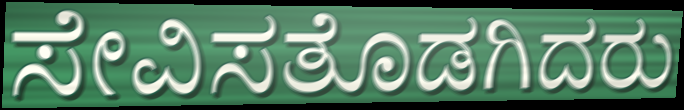
ಸೇವಿಸತೊಡಗಿದರು